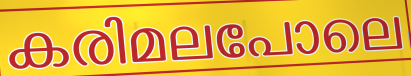
കരിമലപോലെ